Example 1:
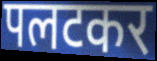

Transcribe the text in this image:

पलटकर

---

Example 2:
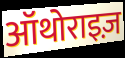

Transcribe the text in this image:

ऑथोराइज़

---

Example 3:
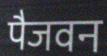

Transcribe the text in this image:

पैजवन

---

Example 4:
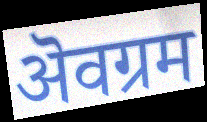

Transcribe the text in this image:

ऄवग्रम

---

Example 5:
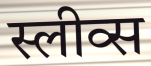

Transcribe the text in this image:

स्लीव्स